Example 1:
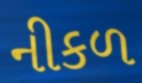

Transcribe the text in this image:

નીકળ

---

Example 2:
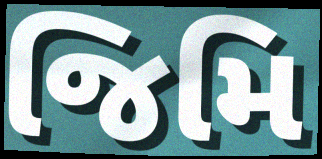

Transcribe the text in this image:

જિમિ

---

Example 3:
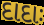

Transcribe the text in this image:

દાદાઃ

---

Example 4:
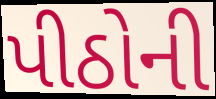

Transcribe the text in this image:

પીઠોની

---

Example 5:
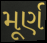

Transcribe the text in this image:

મૂર્ણ